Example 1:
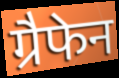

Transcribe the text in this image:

ग्रैफेन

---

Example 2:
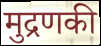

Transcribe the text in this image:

मुद्रणकी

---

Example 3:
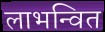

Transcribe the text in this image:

लाभन्वित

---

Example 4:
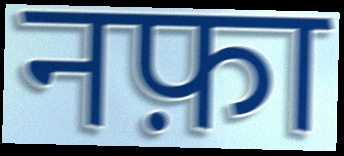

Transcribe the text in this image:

नफ़ा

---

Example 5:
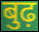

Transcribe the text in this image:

बुढ़